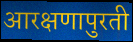
आरक्षणापुरती